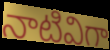
నాటివిగా